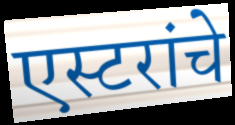
एस्टरांचे